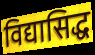
विद्यासिद्ध